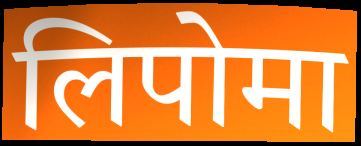
लिपोमा